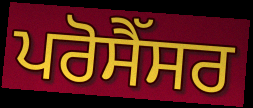
ਪਰੋਸੈੱਸਰ